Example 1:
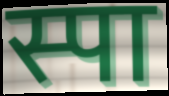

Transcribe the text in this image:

स्पा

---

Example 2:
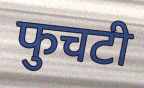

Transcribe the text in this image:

फुचटी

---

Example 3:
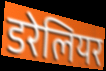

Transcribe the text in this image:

डरेलियर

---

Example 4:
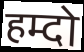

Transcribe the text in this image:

हम्दो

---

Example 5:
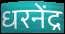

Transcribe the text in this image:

धरनेंद्र